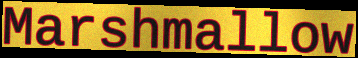
Marshmallow